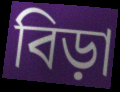
বিড়া